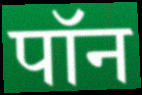
पॉन